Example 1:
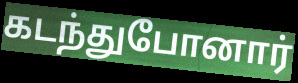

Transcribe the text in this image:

கடந்துபோனார்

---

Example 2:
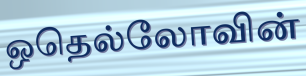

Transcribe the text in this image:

ஒதெல்லோவின்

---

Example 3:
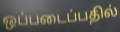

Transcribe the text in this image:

ஒப்படைப்பதில்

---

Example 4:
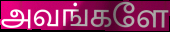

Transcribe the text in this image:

அவங்களே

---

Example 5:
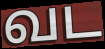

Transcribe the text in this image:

வட